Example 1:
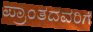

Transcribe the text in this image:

ಪ್ರಾಂತದವರಿಗೆ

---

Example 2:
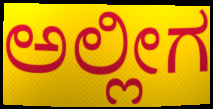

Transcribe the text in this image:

ಅಲ್ಲೀಗ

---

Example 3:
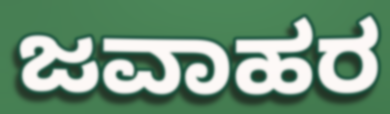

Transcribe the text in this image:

ಜವಾಹರ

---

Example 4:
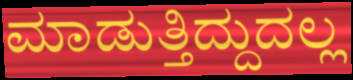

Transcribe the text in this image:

ಮಾಡುತ್ತಿದ್ದುದಲ್ಲ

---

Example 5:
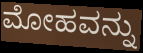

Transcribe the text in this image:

ಮೋಹವನ್ನು